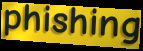
phishing